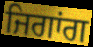
ਜਿਗਾਂਗ